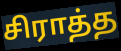
சிராத்த